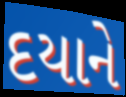
દયાને